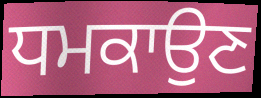
ਧਮਕਾਉਣ